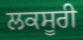
ਲਕਸੂਰੀ